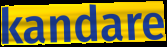
kandare